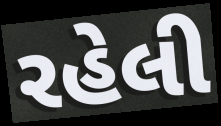
રહેલી